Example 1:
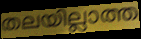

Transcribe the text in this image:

തലയില്ലാത്ത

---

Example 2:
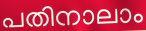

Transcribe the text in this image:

പതിനാലാം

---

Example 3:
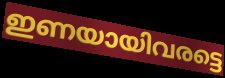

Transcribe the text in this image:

ഇണയായിവരട്ടെ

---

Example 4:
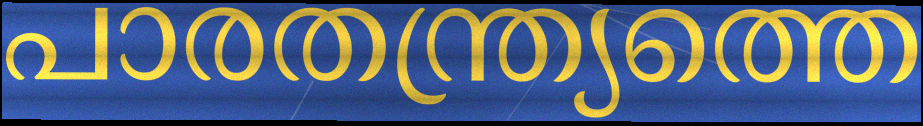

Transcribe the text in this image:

പാരതന്ത്ര്യത്തെ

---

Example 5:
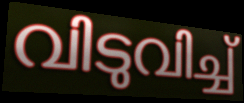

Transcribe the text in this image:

വിടുവിച്ച്